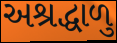
અશ્રદ્ધાળુ